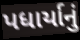
પધાર્યાનું